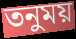
তনুময়